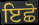
ਇਛੋ